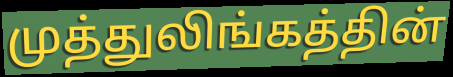
முத்துலிங்கத்தின்